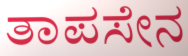
ತಾಪಸೇನ